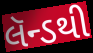
લૅન્ડથી